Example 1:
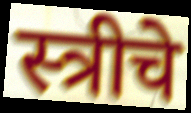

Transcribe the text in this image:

स्त्रीचे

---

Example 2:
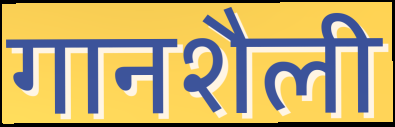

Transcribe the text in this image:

गानशैली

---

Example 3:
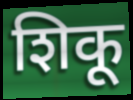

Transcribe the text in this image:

शिकू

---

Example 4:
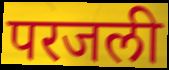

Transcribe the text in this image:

परजली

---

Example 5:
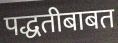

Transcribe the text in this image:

पद्धतीबाबत